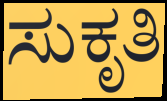
ಸುಕೃತಿ